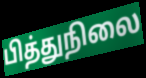
பித்துநிலை